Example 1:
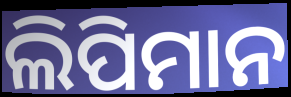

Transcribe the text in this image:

ଲିପିମାନ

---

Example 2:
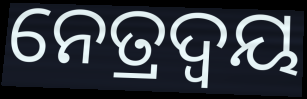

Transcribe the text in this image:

ନେତ୍ରଦ୍ୱୟ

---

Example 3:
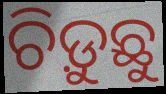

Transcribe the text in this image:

ଚିଡ଼ୁଛୁ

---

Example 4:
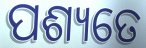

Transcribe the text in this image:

ପଶ୍ୟତେ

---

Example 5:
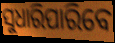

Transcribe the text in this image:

ସୁଧାରିପାରିବେ